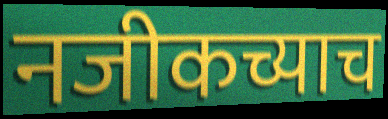
नजीकच्याच